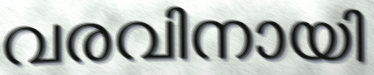
വരവിനായി